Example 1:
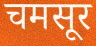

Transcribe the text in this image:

चमसूर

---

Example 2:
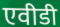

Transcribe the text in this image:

एवीडी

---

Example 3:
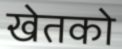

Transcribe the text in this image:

खेतको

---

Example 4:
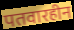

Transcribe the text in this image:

पतवारहीन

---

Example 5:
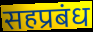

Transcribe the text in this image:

सहप्रबंध